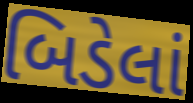
બિડેલાં